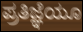
ಪ್ರತಿಜ್ಞೆಯೂ